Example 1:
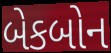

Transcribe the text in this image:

બેકબોન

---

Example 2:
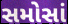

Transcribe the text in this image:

સમોસાં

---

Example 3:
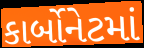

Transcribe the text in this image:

કાર્બોનેટમાં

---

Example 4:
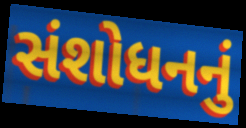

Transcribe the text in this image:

સંશોધનનું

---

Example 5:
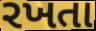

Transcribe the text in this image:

રખતા